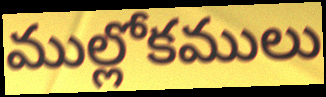
ముల్లోకములు